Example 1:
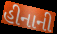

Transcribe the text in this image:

હીનાની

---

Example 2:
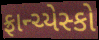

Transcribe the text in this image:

ફ્રાન્ચ્યેસ્કો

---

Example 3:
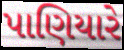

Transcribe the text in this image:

પાણિયારે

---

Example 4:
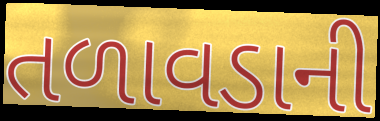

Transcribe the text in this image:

તળાવડાની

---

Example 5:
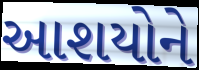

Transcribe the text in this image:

આશયોને